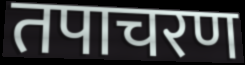
तपाचरण